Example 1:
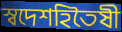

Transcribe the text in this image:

স্বদেশহিতৈষী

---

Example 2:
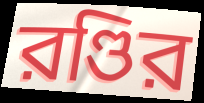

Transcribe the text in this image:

রণ্ডির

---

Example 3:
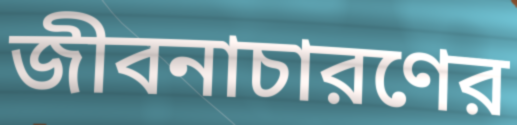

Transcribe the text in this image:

জীবনাচারণের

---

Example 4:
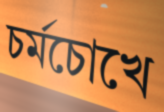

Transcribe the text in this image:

চর্মচোখে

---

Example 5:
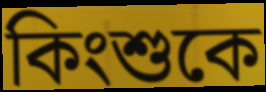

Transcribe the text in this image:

কিংশুকে